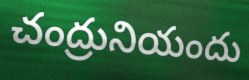
చంద్రునియందు